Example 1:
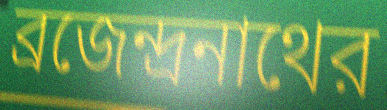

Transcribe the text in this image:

ব্রজেন্দ্রনাথের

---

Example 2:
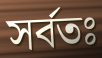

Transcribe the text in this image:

সর্বতঃ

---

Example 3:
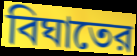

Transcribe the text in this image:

বিঘাতের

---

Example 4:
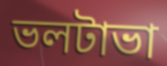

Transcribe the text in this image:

ভলটাভা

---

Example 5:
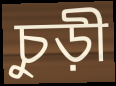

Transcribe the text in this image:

চুড়ী